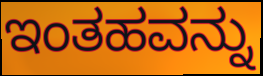
ಇಂತಹವನ್ನು